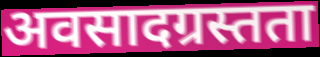
अवसादग्रस्तता